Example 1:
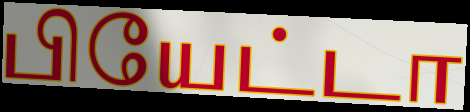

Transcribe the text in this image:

பியேட்டா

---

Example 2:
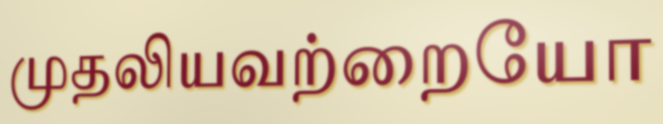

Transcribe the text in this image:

முதலியவற்றையோ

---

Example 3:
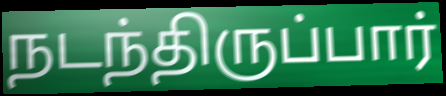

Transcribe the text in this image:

நடந்திருப்பார்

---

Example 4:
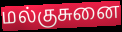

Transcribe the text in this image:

மல்குசுனை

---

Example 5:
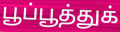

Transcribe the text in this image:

பூப்பூத்துக்